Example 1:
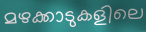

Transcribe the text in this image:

മഴക്കാടുകളിലെ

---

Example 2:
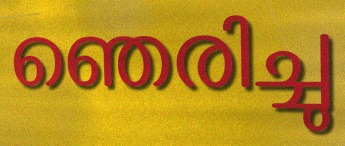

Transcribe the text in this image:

ഞെരിച്ചു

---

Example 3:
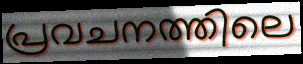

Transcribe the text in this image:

പ്രവചനത്തിലെ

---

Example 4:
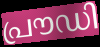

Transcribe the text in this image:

പ്രൗഡി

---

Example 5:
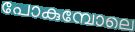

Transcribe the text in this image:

പോകുമ്പോലെ